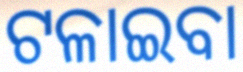
ଟଳାଇବା